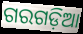
ଗରଗଡ଼ିଆ